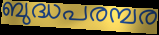
ബുദ്ധപരമ്പര